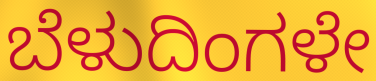
ಬೆಳುದಿಂಗಳೇ